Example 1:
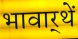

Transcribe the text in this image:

भावार्थें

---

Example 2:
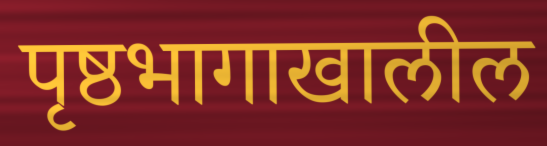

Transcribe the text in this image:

पृष्ठभागाखालील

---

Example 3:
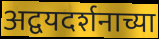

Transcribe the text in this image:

अद्वयदर्शनाच्या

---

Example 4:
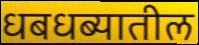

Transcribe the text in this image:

धबधब्यातील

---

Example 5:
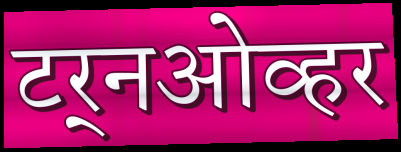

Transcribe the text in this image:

टर्नओव्हर